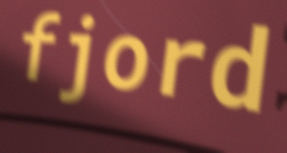
fjord